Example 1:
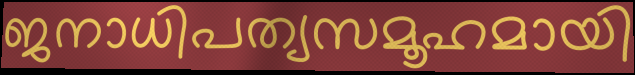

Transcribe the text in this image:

ജനാധിപത്യസമൂഹമായി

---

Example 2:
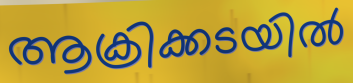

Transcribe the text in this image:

ആക്രിക്കടയിൽ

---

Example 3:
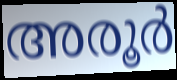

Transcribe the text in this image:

അരൂർ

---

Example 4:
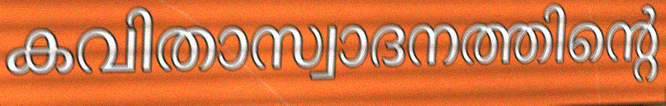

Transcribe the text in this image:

കവിതാസ്വാദനത്തിന്റെ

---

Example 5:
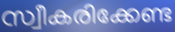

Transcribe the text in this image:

സ്വീകരിക്കേണ്ട